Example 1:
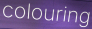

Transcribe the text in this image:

colouring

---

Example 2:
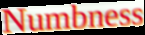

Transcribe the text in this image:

Numbness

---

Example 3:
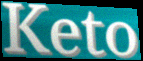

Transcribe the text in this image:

Keto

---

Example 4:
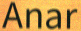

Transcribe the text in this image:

Anar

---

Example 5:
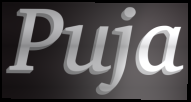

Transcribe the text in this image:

Puja